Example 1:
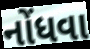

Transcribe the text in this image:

નોંધવા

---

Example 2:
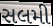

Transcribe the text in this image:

સલમી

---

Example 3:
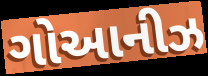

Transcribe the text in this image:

ગોઆનીઝ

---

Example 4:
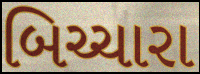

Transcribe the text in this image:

બિચ્ચારા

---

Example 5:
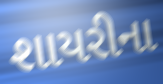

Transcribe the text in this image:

શાયરીના